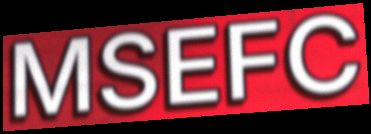
MSEFC